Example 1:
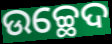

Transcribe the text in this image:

ଉଚ୍ଛେଦ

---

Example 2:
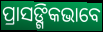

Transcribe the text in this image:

ପ୍ରାସଙ୍ଗିକଭାବେ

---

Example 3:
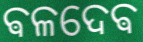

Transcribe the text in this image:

ଵଳଦେଵ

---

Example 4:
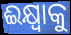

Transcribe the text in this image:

ଈକ୍ଷ୍ୱାକୁ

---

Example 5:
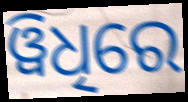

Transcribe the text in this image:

ୱିଧିରେ